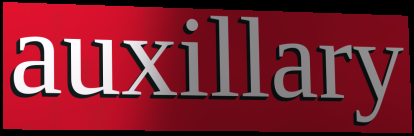
auxillary